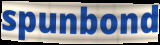
spunbond